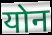
योन